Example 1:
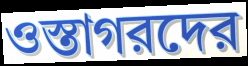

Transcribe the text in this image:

ওস্তাগরদের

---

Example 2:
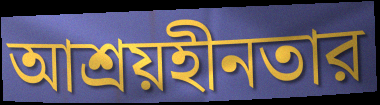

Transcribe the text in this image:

আশ্রয়হীনতার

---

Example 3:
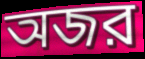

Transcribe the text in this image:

অজর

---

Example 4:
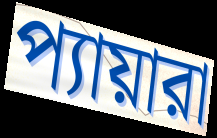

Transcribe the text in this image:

প্যায়ারা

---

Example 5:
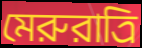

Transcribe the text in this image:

মেরুরাত্রি